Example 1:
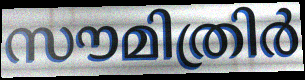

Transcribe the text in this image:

സൗമിത്രിർ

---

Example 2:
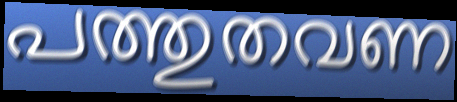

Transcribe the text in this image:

പത്തുതവണ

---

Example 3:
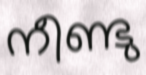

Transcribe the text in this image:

നീണ്ടു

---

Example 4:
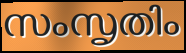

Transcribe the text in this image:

സംസൃതിം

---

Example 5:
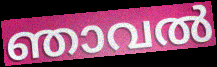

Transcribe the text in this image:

ഞാവൽ